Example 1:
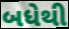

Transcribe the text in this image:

બધેથી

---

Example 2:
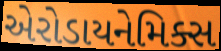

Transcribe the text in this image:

એરોડાયનેમિક્સ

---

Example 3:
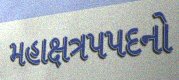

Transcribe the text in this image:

મહાક્ષત્રપપદનો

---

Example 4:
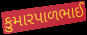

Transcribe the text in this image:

કુમારપાળભાઈ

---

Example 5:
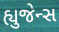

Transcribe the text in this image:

હ્યુજેન્સ